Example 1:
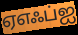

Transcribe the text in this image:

ஏஎஃப்ஐ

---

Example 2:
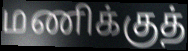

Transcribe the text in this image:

மணிக்குத்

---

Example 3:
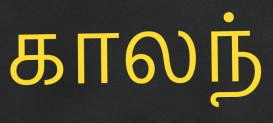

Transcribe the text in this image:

காலந்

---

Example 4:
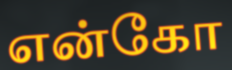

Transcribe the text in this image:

என்கோ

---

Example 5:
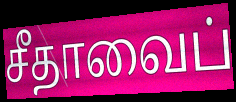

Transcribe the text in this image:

சீதாவைப்